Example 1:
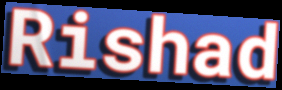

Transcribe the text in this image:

Rishad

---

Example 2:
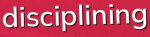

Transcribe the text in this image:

disciplining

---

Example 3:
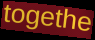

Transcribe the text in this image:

togethe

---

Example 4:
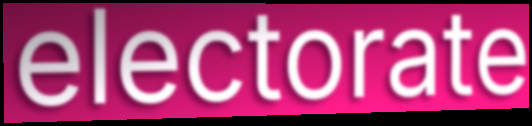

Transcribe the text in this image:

electorate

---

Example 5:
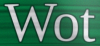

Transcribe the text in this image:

Wot